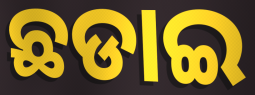
ଛଡାଇ